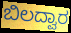
ಬಿಲದ್ವಾರ